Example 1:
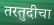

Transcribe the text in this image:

तरतुदीचा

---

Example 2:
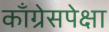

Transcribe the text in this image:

काँग्रेसपेक्षा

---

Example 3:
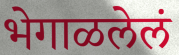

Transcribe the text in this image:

भेगाळलेलं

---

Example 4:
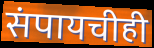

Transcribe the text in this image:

संपायचीही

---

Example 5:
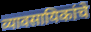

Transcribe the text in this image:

व्यावसायिकांचे